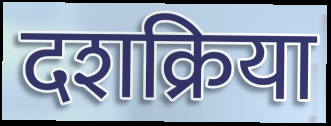
दशक्रिया